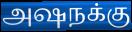
அஷநக்கு